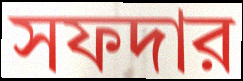
সফদার